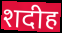
शदीह